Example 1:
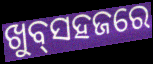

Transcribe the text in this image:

ଖୁବ୍‌ସହଜରେ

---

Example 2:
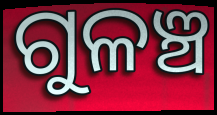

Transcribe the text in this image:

ଗୁଳଞ୍ଚ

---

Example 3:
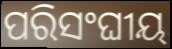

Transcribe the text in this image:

ପରିସଂଘୀୟ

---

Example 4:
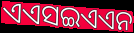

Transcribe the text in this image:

ଏଏସଇଏଏନ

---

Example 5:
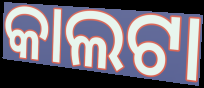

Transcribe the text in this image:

କାଲଟା